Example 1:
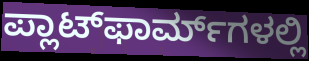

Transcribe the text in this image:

ಪ್ಲಾಟ್‌ಫಾರ್ಮ್‌ಗಳಲ್ಲಿ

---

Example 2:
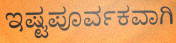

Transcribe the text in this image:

ಇಷ್ಟಪೂರ್ವಕವಾಗಿ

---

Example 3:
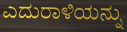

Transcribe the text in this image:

ಎದುರಾಳಿಯನ್ನು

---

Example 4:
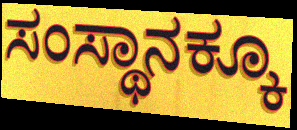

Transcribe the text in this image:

ಸಂಸ್ಥಾನಕ್ಕೂ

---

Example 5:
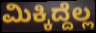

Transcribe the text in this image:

ಮಿಕ್ಕಿದ್ದೆಲ್ಲ